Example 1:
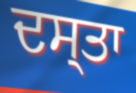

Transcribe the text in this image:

ਦਸ੍ਤਾ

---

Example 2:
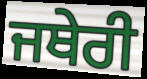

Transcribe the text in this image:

ਜਥੇਰੀ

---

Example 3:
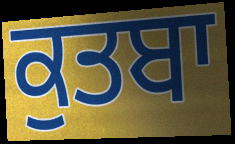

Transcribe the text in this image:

ਕੁਤਬਾ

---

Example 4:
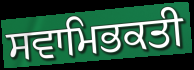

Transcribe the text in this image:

ਸਵਾਮਿਭਕਤੀ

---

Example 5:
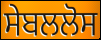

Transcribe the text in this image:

ਸੇਬਲਲੋਸ